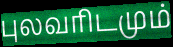
புலவரிடமும்